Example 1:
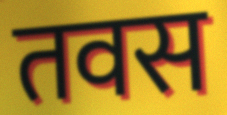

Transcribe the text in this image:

तवस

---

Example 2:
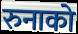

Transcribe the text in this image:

रुनाको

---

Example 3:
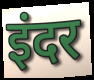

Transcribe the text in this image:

इंदर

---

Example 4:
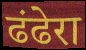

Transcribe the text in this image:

ढंढेरा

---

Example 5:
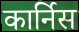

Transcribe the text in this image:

कार्निस